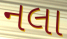
નલા